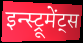
इन्स्ट्रूमेंट्स